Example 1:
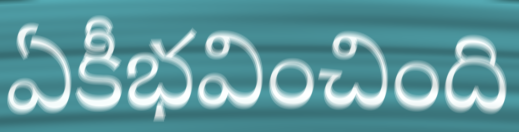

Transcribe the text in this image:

ఏకీభవించింది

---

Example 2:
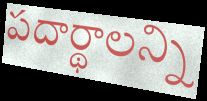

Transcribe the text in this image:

పదార్థాలన్ని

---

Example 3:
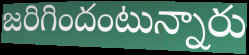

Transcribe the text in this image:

జరిగిందంటున్నారు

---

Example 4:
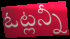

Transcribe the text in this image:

ఓట్లన్నీ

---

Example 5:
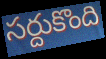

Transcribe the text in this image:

సర్దుకొంది